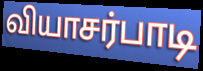
வியாசர்பாடி